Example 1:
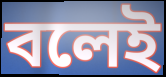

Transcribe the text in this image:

বলেই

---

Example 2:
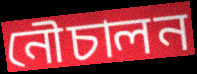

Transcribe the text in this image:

নৌচালন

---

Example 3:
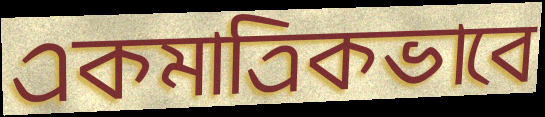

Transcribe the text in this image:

একমাত্রিকভাবে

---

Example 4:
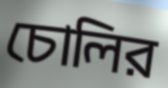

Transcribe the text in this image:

চোলির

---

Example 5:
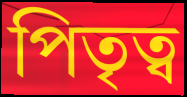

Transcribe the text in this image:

পিতৃত্ব